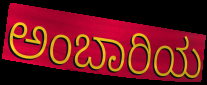
ಅಂಬಾರಿಯ